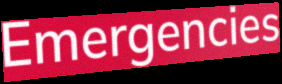
Emergencies